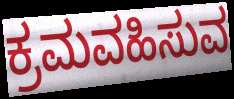
ಕ್ರಮವಹಿಸುವ